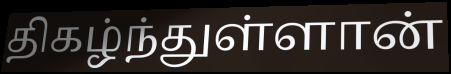
திகழ்ந்துள்ளான்